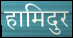
हामिदुर